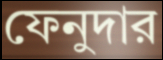
ফেনুদার